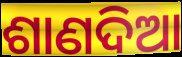
ଶାଣଦିଆ